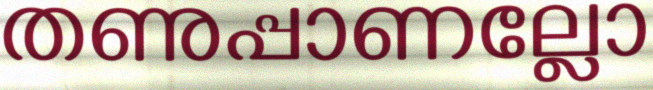
തണുപ്പാണല്ലോ